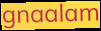
gnaalam